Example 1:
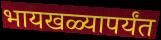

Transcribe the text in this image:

भायखळ्यापर्यंत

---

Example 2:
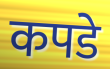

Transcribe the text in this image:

कपडे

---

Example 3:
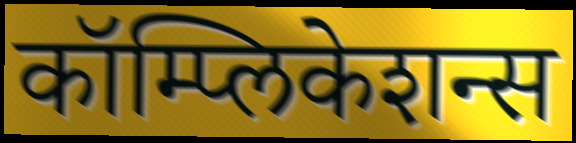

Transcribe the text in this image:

कॉम्प्लिकेशन्स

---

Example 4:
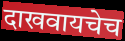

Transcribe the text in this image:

दाखवायचेच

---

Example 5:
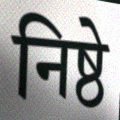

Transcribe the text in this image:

निष्ठे